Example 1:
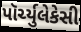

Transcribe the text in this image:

પૉર્ચ્યુલેકેસી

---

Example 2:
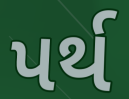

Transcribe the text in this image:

પર્થ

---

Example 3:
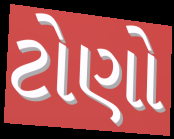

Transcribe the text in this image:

ટોણો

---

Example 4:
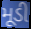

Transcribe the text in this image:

મૂડી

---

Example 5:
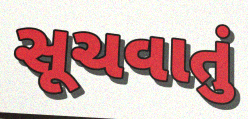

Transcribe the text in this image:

સૂચવાતું